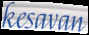
kesavan